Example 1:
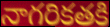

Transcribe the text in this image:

నాగరికతకి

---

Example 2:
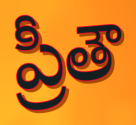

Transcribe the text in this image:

ప్రీతౌ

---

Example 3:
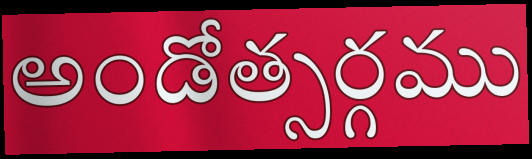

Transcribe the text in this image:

అండోత్సర్గము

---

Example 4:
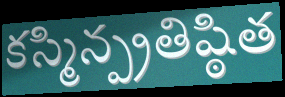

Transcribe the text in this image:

కస్మిన్ప్రతిష్ఠిత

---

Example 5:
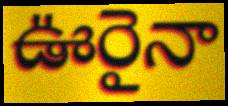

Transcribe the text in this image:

ఊరైనా